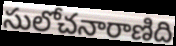
సులోచనారాణిది